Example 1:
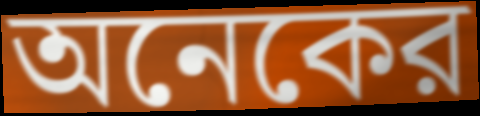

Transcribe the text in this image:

অনেকের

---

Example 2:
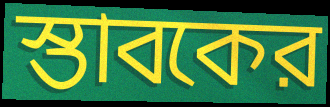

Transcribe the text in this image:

স্তাবকের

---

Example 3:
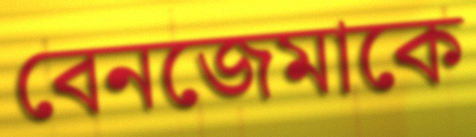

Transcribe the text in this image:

বেনজেমাকে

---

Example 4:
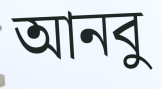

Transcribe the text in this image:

আনবু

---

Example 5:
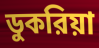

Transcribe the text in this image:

ডুকরিয়া